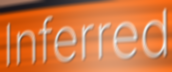
Inferred